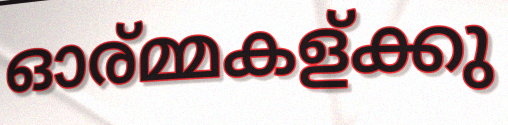
ഓര്മ്മകള്ക്കു